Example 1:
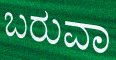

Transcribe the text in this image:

ಬರುವಾ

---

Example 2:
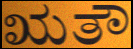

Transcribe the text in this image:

ಋತೌ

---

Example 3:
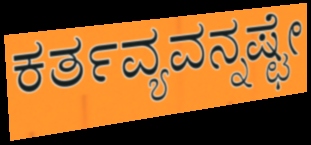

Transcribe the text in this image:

ಕರ್ತವ್ಯವನ್ನಷ್ಟೇ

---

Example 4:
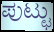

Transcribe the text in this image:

ಪುಟ್ಟು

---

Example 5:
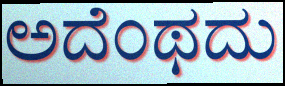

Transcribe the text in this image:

ಅದೆಂಥದು